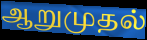
ஆறுமுதல்